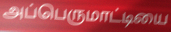
அப்பெருமாட்டியை